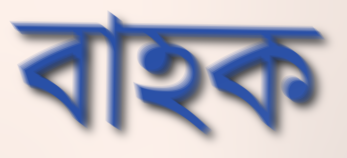
বাহক